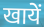
खायें